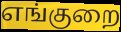
எங்குறை